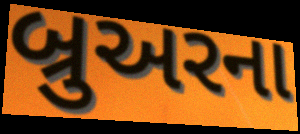
બ્રુઅરના